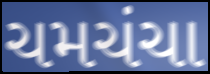
ચમચંચા